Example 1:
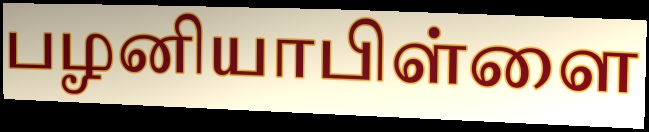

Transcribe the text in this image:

பழனியாபிள்ளை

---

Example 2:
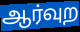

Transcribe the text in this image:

ஆர்வுற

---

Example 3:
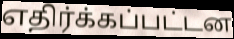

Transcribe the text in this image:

எதிர்க்கப்பட்டன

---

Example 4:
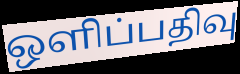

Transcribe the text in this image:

ஒளிப்பதிவு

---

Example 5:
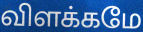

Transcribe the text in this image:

விளக்கமே